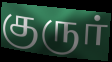
குருர்